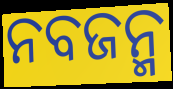
ନବଜନ୍ମ